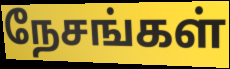
நேசங்கள்